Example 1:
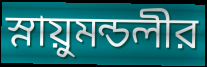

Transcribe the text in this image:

স্নায়ুমন্ডলীর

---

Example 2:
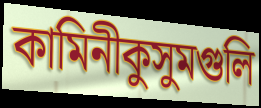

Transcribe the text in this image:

কামিনীকুসুমগুলি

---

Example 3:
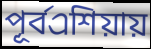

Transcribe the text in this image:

পূর্বএশিয়ায়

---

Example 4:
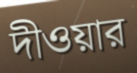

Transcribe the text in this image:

দীওয়ার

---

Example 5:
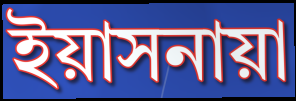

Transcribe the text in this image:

ইয়াসনায়া